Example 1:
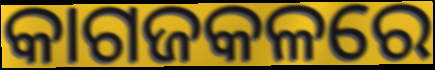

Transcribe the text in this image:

କାଗଜକଳରେ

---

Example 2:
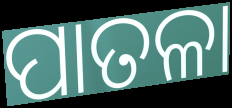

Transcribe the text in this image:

ପାତଳା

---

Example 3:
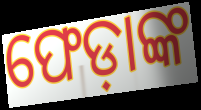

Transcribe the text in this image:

ଫେଡ଼ାଙ୍କ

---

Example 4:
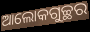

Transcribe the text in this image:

ଆଲୋକଗୁଚ୍ଛର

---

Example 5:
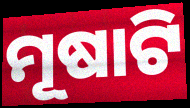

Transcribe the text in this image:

ମୂଷାଟି